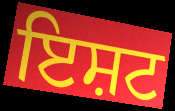
ਇਸ਼ਟ